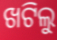
ଖଟିଲୁ